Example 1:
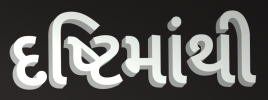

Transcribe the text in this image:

દષ્ટિમાંથી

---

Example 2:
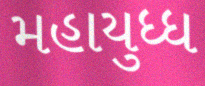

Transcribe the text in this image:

મહાયુધ્ધ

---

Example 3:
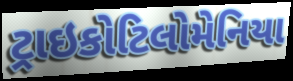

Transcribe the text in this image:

ટ્રાઇકોટિલોમેનિયા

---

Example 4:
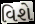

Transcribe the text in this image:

વિશે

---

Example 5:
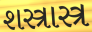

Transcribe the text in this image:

શસ્ત્રાસ્ત્ર